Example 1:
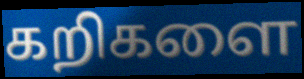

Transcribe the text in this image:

கறிகளை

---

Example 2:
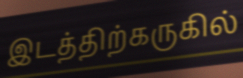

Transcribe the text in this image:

இடத்திற்கருகில்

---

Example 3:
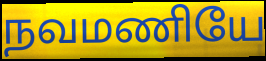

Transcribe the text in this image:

நவமணியே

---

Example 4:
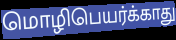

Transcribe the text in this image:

மொழிபெயர்க்காது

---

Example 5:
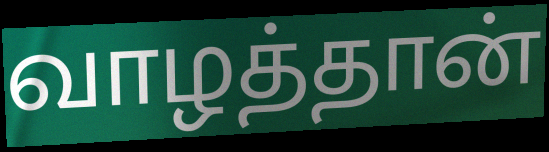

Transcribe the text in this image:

வாழத்தான்